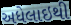
અધેલાઇથી